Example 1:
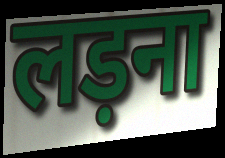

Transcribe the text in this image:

लड़ना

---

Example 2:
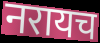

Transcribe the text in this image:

नरायच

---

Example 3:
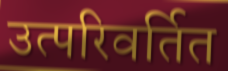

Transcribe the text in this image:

उत्परिवर्तित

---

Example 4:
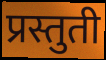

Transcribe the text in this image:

प्रस्तुती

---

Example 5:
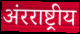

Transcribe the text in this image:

अंरराष्ट्रीय